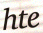
hte